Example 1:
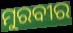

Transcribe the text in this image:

ମୁରବୀର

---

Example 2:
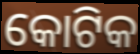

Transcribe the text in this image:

କୋଟିକ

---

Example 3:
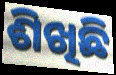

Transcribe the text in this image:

ଶିଖିଛି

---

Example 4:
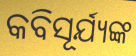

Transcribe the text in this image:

କବିସୂର୍ଯ୍ୟଙ୍କ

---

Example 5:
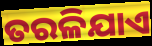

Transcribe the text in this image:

ତରଳିଯାଏ